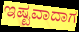
ಇಷ್ಟವಾದಾಗ